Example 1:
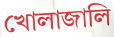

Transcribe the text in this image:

খোলাজালি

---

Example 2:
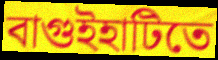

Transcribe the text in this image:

বাগুইহাটিতে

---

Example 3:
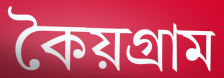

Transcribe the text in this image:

কৈয়গ্রাম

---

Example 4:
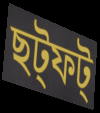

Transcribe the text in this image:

ছট্ফট্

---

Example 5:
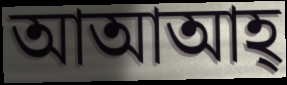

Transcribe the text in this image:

আআআহ্